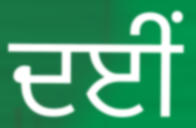
ਦਈਂ